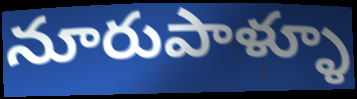
నూరుపాళ్ళూ